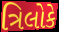
ત્રિલોકે